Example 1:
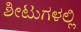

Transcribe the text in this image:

ಶೀಟುಗಳಲ್ಲಿ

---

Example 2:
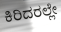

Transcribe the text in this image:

ಕಿರಿದರಲ್ಲೇ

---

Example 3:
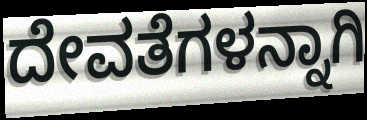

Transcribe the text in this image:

ದೇವತೆಗಳನ್ನಾಗಿ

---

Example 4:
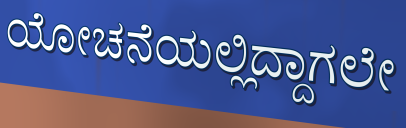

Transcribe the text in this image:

ಯೋಚನೆಯಲ್ಲಿದ್ದಾಗಲೇ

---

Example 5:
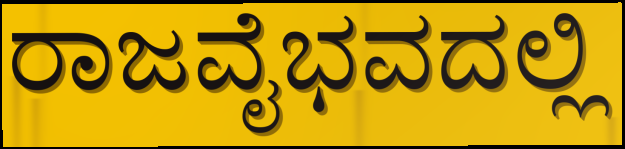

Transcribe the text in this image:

ರಾಜವೈಭವದಲ್ಲಿ